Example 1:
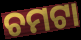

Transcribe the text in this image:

ଚମଟା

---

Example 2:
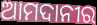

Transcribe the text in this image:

ଆମଦାନୀର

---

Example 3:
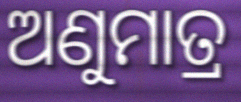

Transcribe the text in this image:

ଅଣୁମାତ୍ର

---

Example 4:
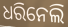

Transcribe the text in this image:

ଧରିନେଲି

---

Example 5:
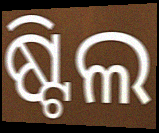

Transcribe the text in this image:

ଷ୍ଟିଲ